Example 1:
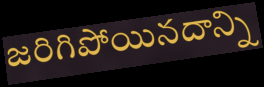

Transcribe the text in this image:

జరిగిపోయినదాన్ని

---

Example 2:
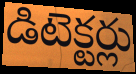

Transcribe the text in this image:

డిటెక్టర్లు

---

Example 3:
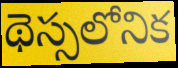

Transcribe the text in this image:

థెస్సలోనిక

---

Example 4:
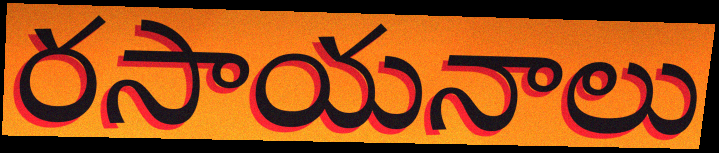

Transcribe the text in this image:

రసాయనాలు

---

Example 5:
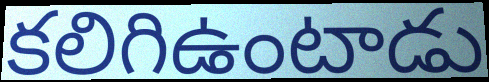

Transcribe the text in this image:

కలిగిఉంటాడు